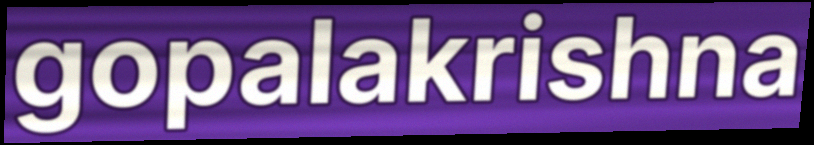
gopalakrishna